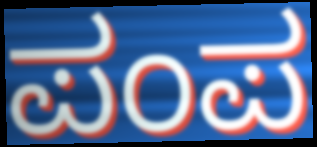
ಪಂಪ